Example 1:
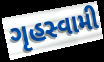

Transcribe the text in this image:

ગૃહસ્વામી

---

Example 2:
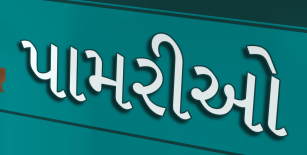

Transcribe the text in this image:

પામરીઓ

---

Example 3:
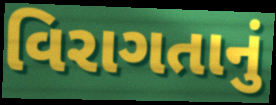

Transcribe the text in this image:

વિરાગતાનું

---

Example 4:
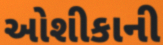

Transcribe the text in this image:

ઓશીકાની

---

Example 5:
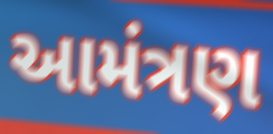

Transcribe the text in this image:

આમંત્રણ